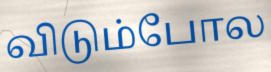
விடும்போல